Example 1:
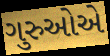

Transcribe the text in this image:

ગુરુઓએ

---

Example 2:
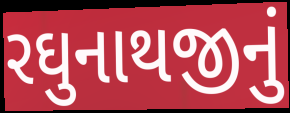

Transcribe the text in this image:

રઘુનાથજીનું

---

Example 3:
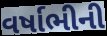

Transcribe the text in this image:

વર્ષાભીની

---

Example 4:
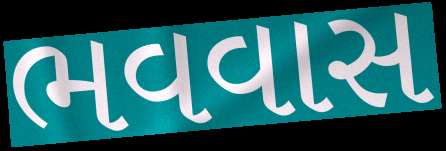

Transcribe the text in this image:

ભવવાસ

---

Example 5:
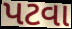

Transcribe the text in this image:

પટવા